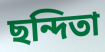
ছন্দিতা